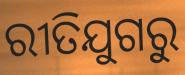
ରୀତିଯୁଗରୁ